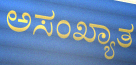
ಅಸಂಖ್ಯಾತ